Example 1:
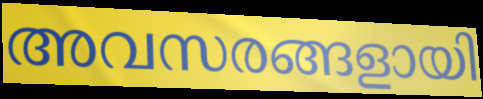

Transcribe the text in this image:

അവസരങ്ങളായി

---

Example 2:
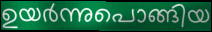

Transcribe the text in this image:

ഉയർന്നുപൊങ്ങിയ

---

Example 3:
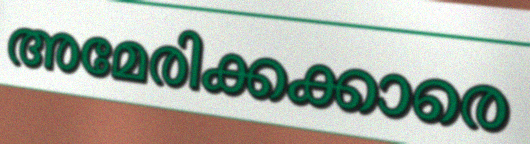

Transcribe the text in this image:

അമേരിക്കക്കാരെ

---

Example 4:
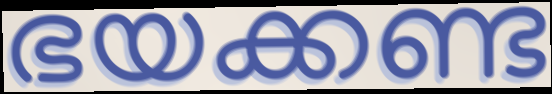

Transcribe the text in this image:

ഭയക്കണ്ട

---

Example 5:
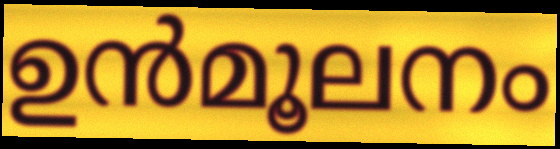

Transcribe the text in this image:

ഉൻമൂലനം